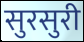
सुरसुरी